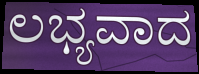
ಲಭ್ಯವಾದ